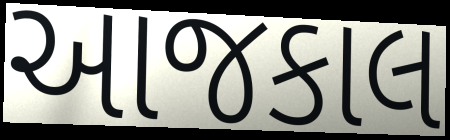
આજકાલ